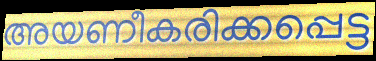
അയണീകരിക്കപ്പെട്ട